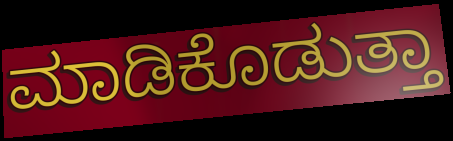
ಮಾಡಿಕೊಡುತ್ತಾ